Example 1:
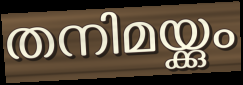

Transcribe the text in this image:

തനിമയ്ക്കും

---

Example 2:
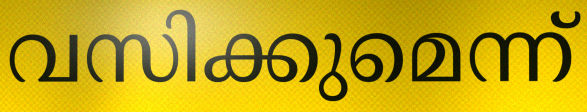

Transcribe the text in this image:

വസിക്കുമെന്ന്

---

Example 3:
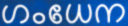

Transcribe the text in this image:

ഗംധേന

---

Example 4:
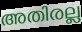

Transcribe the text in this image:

അതിരല്ല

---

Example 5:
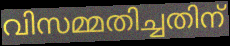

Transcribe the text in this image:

വിസമ്മതിച്ചതിന്